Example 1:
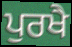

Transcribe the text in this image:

ਪੁਰਖੈ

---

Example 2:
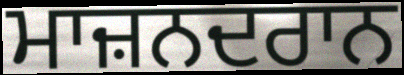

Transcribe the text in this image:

ਮਾਜ਼ਨਦਰਾਨ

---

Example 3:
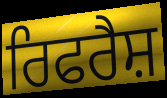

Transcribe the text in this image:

ਰਿਫਰੈਸ਼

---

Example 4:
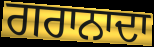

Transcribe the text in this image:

ਗਰਾਨਾਦਾ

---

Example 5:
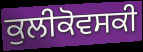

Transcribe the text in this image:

ਕੁਲੀਕੋਵਸਕੀ